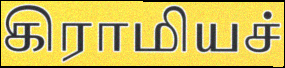
கிராமியச்